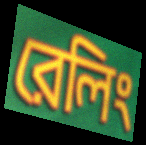
রেলিং